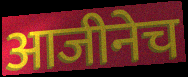
आजीनेच